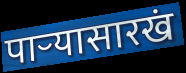
पाऱ्यासारखं